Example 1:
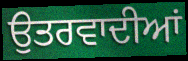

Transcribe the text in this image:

ਉਤਰਵਾਦੀਆਂ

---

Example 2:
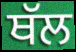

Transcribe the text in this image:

ਥੱਲ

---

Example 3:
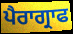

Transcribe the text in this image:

ਪੈਰਾਗ੍ਰਾਫ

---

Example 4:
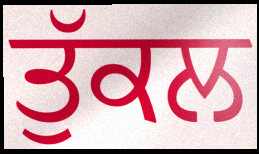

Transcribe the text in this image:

ਤੁੱਕਲ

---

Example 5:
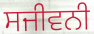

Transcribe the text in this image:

ਸਜੀਵਨੀ